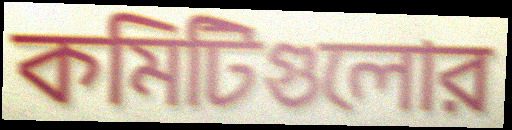
কমিটিগুলোর